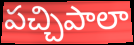
పచ్చిపాలా